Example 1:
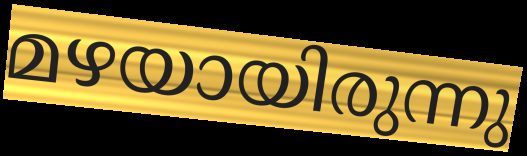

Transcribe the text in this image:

മഴയായിരുന്നു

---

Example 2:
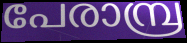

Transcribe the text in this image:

പേരാമ്പ്ര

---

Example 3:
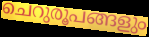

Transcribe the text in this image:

ചെറുരൂപങ്ങളും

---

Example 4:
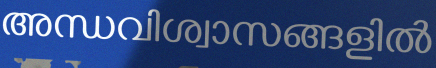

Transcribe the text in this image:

അന്ധവിശ്വാസങ്ങളിൽ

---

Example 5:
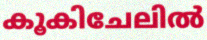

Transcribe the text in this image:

കൂകിചേലിൽ